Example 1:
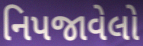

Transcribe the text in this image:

નિપજાવેલો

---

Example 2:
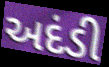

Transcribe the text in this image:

અદંડી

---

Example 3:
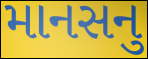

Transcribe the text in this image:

માનસનુ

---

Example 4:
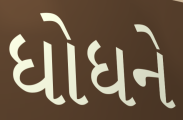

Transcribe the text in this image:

ધોધને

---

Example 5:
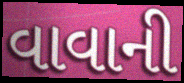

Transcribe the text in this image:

વાવાની